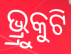
ଭ୍ର୍ରୁକୁଟି